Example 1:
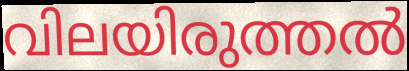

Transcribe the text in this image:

വിലയിരുത്തൽ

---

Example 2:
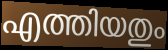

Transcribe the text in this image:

എത്തിയതും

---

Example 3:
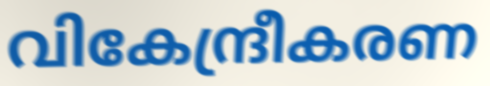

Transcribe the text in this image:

വികേന്ദ്രീകരണ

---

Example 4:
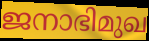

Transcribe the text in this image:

ജനാഭിമുഖ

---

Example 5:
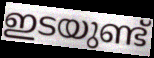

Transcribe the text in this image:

ഇടയുണ്ട്